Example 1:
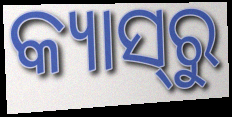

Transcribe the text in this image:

କ୍ୟାସ୍‌ରୁ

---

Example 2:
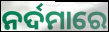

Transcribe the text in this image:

ନର୍ଦମାରେ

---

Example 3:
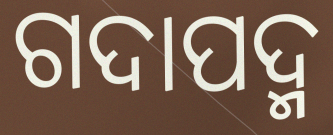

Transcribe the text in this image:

ଗଦାପଦ୍ମ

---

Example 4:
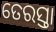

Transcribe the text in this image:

ତେରସ୍ତା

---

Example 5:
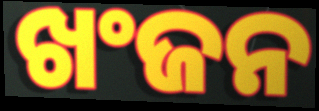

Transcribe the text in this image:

ଖଂଜନ